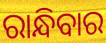
ରାନ୍ଧିବାର